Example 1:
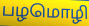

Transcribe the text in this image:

பழமொழி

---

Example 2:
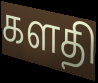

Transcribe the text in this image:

களதி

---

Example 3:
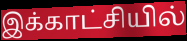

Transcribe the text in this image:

இக்காட்சியில்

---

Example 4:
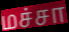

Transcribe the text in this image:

மச்சா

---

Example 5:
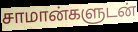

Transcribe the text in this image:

சாமான்களுடன்